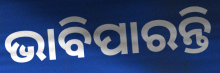
ଭାବିପାରନ୍ତି